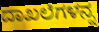
ದಾಖಲೆಗಳನ್ನ